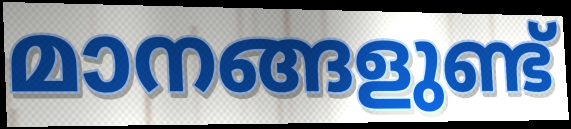
മാനങ്ങളുണ്ട്